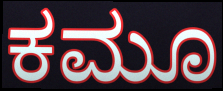
ಕಮೂ